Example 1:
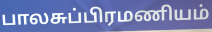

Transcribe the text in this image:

பாலசுப்பிரமணியம்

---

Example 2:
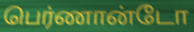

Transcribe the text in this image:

பெர்ணான்டோ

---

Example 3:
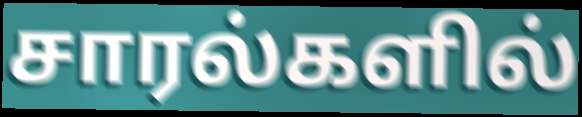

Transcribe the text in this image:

சாரல்களில்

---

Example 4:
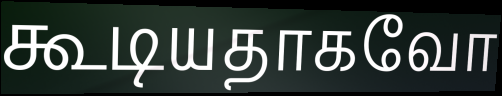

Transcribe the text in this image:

கூடியதாகவோ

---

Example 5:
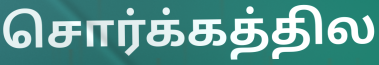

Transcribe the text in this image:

சொர்க்கத்தில